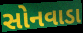
સોનવાડા